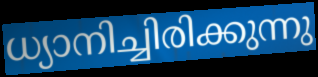
ധ്യാനിച്ചിരിക്കുന്നു